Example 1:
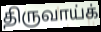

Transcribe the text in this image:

திருவாய்க்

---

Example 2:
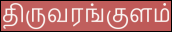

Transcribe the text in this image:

திருவரங்குளம்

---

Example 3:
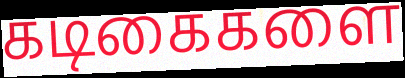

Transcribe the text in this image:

கடிகைகளை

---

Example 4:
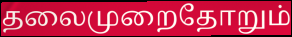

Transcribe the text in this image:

தலைமுறைதோறும்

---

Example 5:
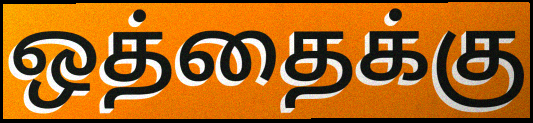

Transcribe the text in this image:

ஒத்தைக்கு